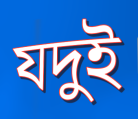
যদুই